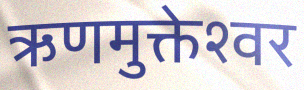
ऋणमुक्तेश्वर